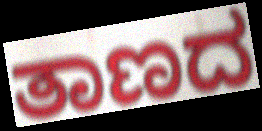
ತಾಣದ